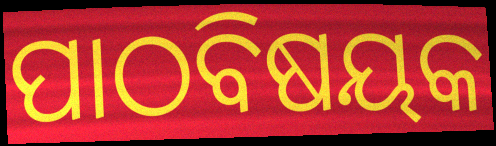
ପାଠବିଷୟକ